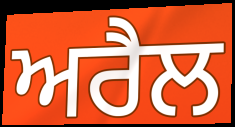
ਅਰੈਲ